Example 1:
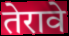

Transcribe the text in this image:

तेरावे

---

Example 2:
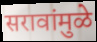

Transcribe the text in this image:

सरावांमुळे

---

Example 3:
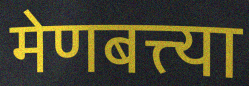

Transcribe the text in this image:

मेणबत्त्या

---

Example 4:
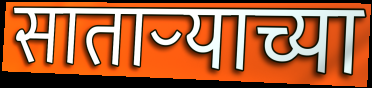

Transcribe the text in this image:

साताऱ्याच्या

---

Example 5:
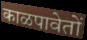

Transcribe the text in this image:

काळपावेतों